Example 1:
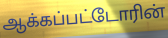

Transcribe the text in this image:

ஆக்கப்பட்டோரின்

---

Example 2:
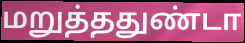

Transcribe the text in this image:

மறுத்ததுண்டா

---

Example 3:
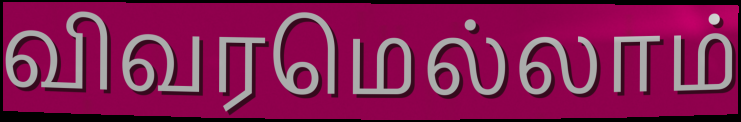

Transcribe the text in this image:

விவரமெல்லாம்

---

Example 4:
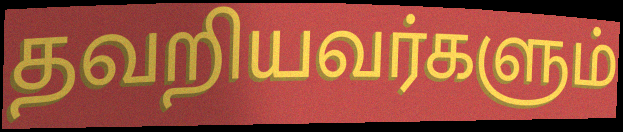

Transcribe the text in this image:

தவறியவர்களும்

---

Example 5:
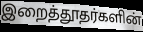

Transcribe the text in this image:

இறைத்தூதர்களின்